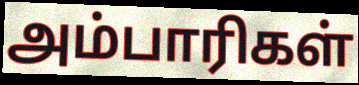
அம்பாரிகள்